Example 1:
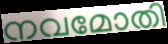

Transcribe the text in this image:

നവമോതി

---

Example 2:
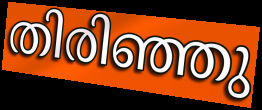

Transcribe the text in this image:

തിരിഞ്ഞു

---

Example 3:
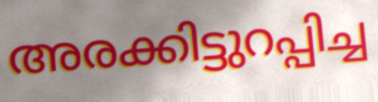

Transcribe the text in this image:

അരക്കിട്ടുറപ്പിച്ച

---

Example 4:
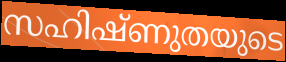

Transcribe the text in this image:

സഹിഷ്ണുതയുടെ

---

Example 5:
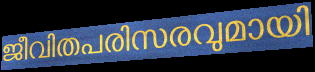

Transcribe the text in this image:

ജീവിതപരിസരവുമായി